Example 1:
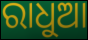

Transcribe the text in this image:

ରାଧୁଆ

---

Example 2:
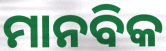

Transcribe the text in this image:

ମାନବିକ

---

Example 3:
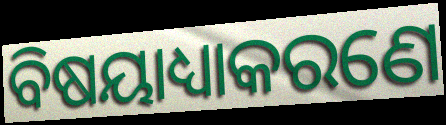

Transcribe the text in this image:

ବିଷୟାଧ୍ୟାକରଣେ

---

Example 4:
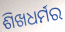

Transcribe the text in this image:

ଶିଖଧର୍ମର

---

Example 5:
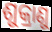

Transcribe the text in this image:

ଶୁକ୍ରାଣୁ